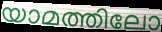
യാമത്തിലോ